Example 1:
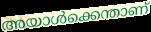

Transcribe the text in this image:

അയാൾക്കെന്താണ്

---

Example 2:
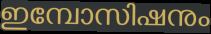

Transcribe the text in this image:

ഇമ്പോസിഷനും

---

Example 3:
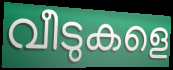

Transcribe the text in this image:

വീടുകളെ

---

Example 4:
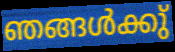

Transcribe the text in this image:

ഞങ്ങൾക്കു്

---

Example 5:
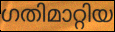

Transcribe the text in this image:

ഗതിമാറ്റിയ